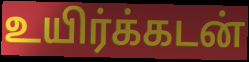
உயிர்க்கடன்